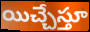
యిచ్చేస్తూ